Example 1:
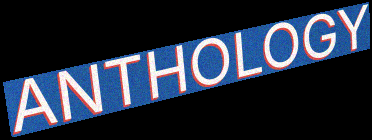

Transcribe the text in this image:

ANTHOLOGY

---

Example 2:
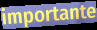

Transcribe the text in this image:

importante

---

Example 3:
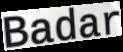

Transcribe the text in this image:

Badar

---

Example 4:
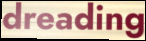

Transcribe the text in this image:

dreading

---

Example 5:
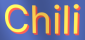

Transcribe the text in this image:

Chili